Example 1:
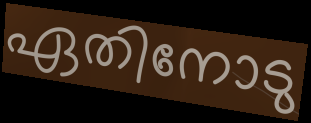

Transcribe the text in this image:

ഏതിനോടു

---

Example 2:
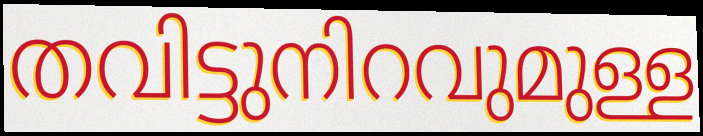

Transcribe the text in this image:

തവിട്ടുനിറവുമുള്ള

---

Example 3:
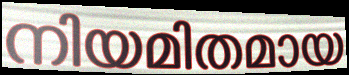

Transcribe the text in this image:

നിയമിതമായ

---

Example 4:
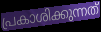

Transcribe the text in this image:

പ്രകാശിക്കുന്നത്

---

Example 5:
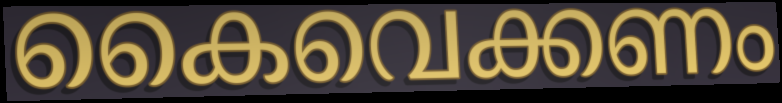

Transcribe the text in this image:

കൈവെക്കണം